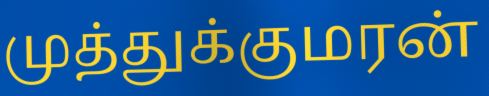
முத்துக்குமரன்